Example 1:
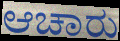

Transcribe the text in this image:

ಆಚಾರು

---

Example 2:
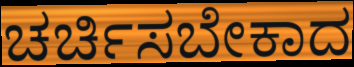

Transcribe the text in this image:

ಚರ್ಚಿಸಬೇಕಾದ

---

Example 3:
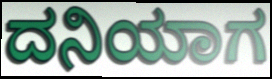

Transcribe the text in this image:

ದನಿಯಾಗ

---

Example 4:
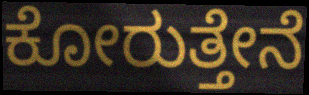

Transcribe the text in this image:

ಕೋರುತ್ತೇನೆ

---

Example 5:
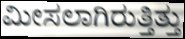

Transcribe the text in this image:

ಮೀಸಲಾಗಿರುತ್ತಿತ್ತು